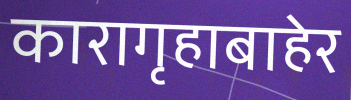
कारागृहाबाहेर